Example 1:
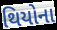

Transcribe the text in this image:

થિયોના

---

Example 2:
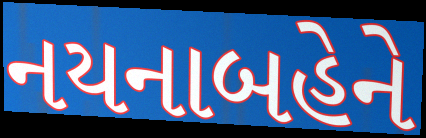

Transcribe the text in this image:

નયનાબહેને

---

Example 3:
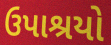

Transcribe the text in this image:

ઉપાશ્રયો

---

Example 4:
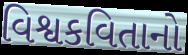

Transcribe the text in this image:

વિશ્વકવિતાનો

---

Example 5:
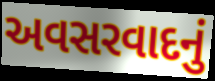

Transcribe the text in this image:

અવસરવાદનું